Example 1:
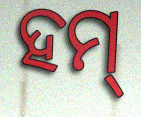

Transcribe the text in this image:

ହମ୍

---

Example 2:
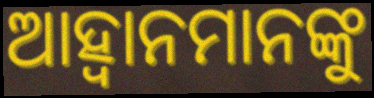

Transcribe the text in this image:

ଆହ୍ୱାନମାନଙ୍କୁ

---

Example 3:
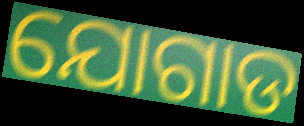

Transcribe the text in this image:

ଯୋଗାଡ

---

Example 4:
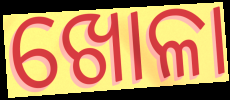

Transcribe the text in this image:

ଖୋଳା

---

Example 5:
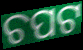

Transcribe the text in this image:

ଚପଟ